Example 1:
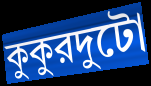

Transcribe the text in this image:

কুকুরদুটো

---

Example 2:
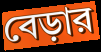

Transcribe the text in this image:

বেড়ার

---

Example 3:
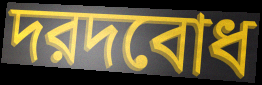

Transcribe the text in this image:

দরদবোধ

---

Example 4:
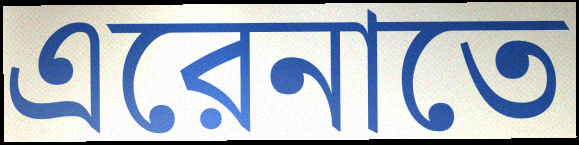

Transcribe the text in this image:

এরেনাতে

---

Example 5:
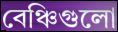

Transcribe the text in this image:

বেঞ্চিগুলো